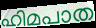
ഹിമപാത